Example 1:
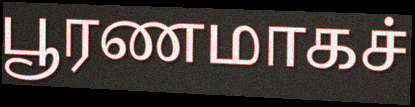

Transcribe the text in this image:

பூரணமாகச்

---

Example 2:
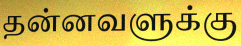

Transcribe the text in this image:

தன்னவளுக்கு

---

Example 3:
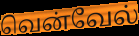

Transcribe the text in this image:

வென்வேல்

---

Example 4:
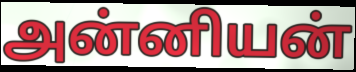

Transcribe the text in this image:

அன்னியன்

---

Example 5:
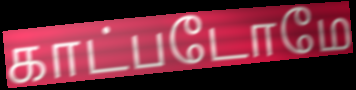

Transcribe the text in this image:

காட்படோமே